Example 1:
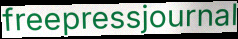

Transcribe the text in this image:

freepressjournal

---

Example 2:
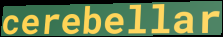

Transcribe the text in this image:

cerebellar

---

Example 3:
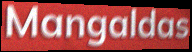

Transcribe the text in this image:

Mangaldas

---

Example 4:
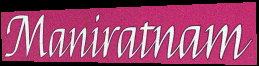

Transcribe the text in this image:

Maniratnam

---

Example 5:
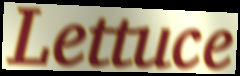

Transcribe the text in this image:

Lettuce